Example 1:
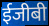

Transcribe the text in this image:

ईजीबी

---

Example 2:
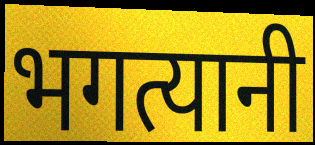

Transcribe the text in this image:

भगत्यानी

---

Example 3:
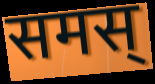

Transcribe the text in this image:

समस्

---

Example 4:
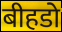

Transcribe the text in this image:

बीहडो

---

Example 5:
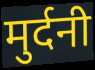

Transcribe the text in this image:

मुर्दनी